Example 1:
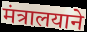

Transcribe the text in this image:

मंत्रालयाने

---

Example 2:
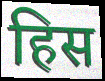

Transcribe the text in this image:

हिस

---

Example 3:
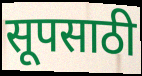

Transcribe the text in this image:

सूपसाठी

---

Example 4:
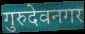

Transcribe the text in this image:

गुरुदेवनगर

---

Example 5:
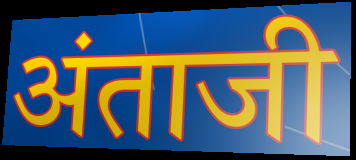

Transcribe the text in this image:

अंताजी